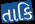
તાકિ